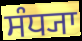
ਸੰਧ੍ਯਾ